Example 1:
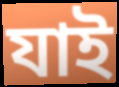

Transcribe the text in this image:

যাই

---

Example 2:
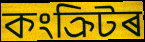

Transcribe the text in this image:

কংক্ৰিটৰ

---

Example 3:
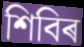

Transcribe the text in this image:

শিবিৰ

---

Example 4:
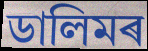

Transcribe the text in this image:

ডালিমৰ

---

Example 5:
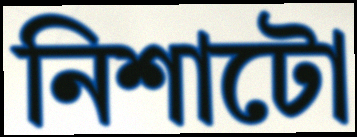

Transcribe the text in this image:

নিশাটো